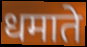
धमाते